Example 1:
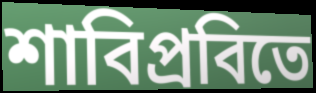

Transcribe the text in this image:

শাবিপ্রবিতে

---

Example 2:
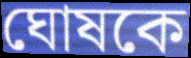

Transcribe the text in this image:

ঘোষকে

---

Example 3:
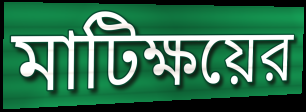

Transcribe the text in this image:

মাটিক্ষয়ের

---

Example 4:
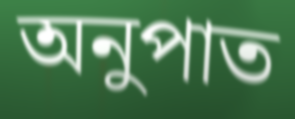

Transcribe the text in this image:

অনুপাত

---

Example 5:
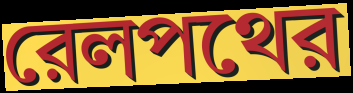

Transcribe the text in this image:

রেলপথের